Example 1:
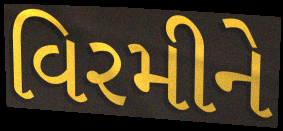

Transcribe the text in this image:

વિરમીને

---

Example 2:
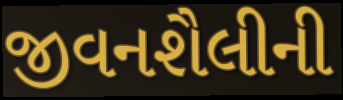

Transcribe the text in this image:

જીવનશૈલીની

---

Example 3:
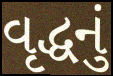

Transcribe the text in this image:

વૃદ્ધનું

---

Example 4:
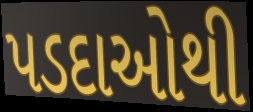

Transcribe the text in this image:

પડદાઓથી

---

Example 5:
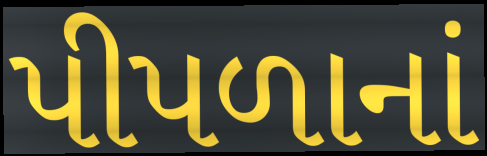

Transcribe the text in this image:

પીપળાનાં